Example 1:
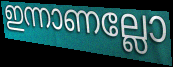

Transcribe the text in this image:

ഇന്നാണല്ലോ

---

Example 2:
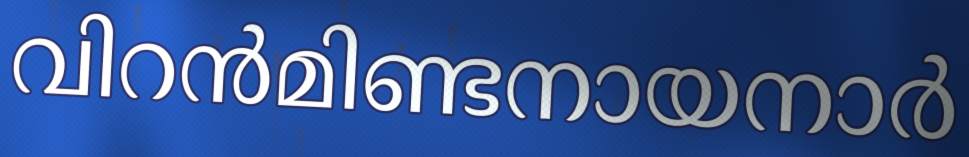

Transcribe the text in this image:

വിറൻമിണ്ടനായനാർ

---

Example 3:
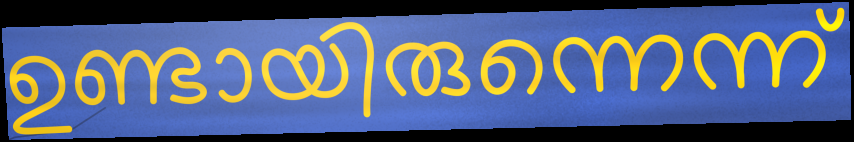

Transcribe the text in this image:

ഉണ്ടായിരുന്നെന്ന്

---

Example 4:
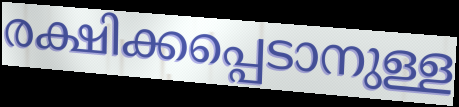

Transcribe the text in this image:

രക്ഷിക്കപ്പെടാനുള്ള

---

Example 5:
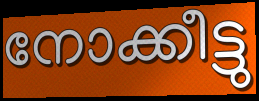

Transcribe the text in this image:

നോക്കീട്ടു